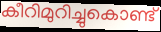
കീറിമുറിച്ചുകൊണ്ട്